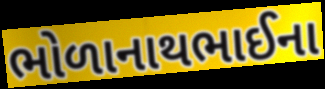
ભોળાનાથભાઈના